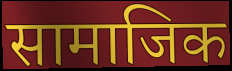
सामाजिक